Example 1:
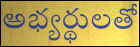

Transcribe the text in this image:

అభ్యర్థులతో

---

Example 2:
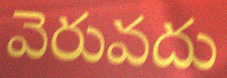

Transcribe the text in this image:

వెరువదు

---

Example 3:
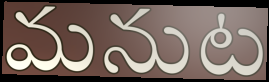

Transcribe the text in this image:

మనుట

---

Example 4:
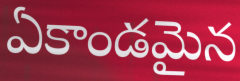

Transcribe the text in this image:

ఏకాండమైన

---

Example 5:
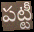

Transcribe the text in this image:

పట్టీ